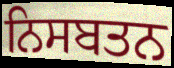
ਨਿਸਬਤਨ